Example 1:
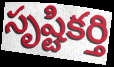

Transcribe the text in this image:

సృష్టికర్తి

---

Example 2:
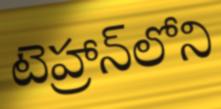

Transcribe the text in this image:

టెహ్రాన్‌లోని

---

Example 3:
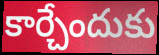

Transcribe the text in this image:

కార్చేందుకు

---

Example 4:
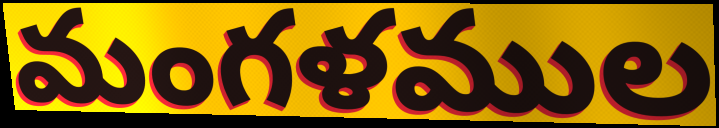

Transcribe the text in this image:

మంగళముల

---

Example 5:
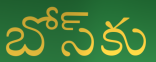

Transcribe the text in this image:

బోస్‌కు